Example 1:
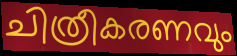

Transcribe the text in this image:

ചിത്രീകരണവും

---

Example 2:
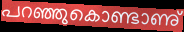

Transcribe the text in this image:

പറഞ്ഞുകൊണ്ടാണു്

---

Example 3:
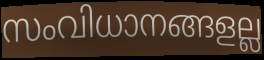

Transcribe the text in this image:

സംവിധാനങ്ങളല്ല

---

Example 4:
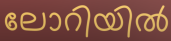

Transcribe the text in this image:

ലോറിയിൽ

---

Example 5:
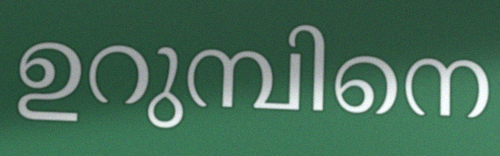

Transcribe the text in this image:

ഉറുമ്പിനെ